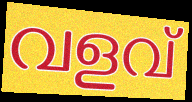
വളവ്